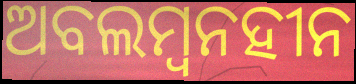
ଅବଲମ୍ବନହୀନ